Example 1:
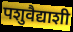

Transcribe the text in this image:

पशुवैद्याशी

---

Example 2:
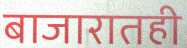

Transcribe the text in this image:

बाजारातही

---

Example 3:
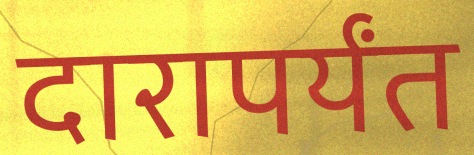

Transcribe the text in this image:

दारापर्यंत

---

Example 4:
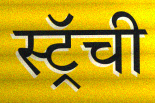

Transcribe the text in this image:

स्ट्रॅची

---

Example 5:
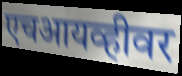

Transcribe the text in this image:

एचआयव्हीवर